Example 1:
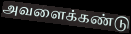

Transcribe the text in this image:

அவளைக்கண்டு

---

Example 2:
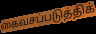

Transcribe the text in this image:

கைவசப்படுத்திக்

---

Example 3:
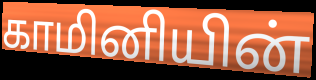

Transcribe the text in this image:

காமினியின்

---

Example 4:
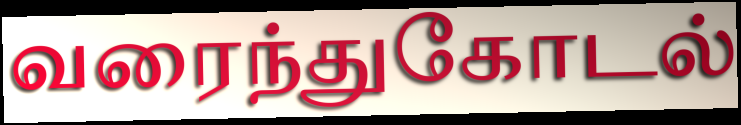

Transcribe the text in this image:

வரைந்துகோடல்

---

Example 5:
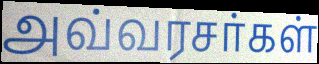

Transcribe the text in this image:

அவ்வரசர்கள்